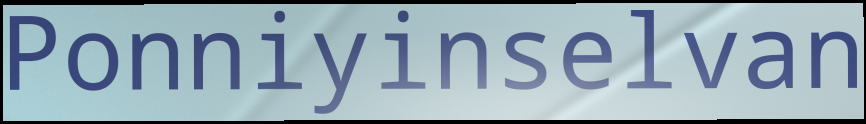
Ponniyinselvan